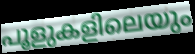
പൂളുകളിലെയും